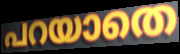
പറയാതെ